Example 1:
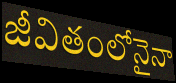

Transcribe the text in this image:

జీవితంలోనైనా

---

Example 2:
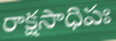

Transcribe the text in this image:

రాక్షసాధిపః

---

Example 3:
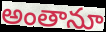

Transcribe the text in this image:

అంతానూ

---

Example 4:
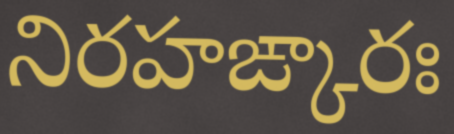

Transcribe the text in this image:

నిరహఙ్కారః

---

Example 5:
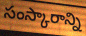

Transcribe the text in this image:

సంస్కారాన్ని